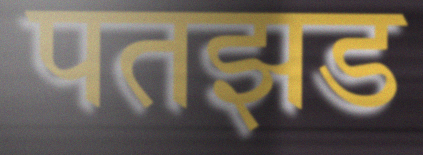
पतझड